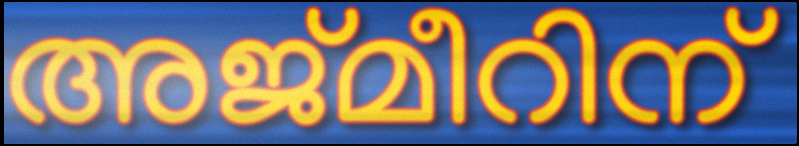
അജ്മീറിന്